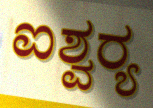
ಐಶ್ವರ‍್ಯ